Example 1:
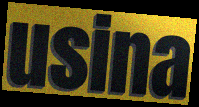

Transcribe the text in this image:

usina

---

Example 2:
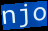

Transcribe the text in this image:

njo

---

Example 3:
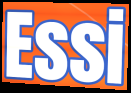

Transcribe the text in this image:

Essi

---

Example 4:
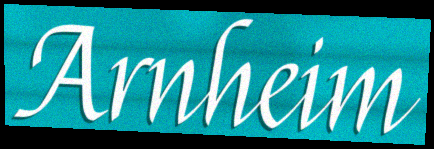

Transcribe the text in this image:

Arnheim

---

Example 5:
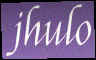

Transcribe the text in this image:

jhulo